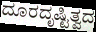
ದೂರದೃಷ್ಟಿತ್ವದ